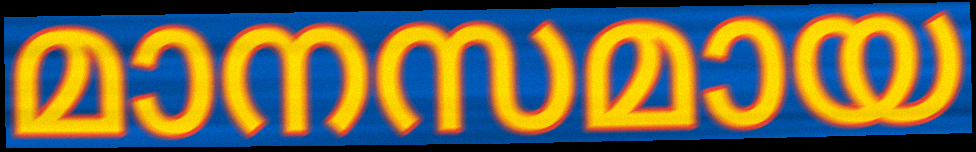
മാനസമായ